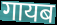
गायब